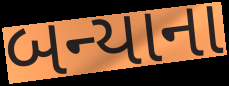
બન્યાના